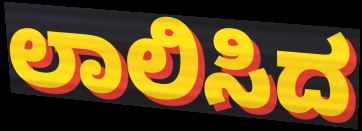
ಲಾಲಿಸಿದ